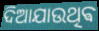
ଦିଆଯାଉଥିଵ